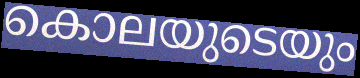
കൊലയുടെയും